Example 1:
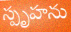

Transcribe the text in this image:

స్పృహను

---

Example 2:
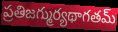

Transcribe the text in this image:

ప్రతిజగ్ముర్యథాగతమ్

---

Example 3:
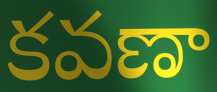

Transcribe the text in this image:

కవణా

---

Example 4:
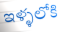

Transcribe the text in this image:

ఇళ్ళలోకి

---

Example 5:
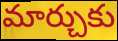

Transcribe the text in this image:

మార్చుకు